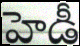
హెడీ